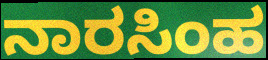
ನಾರಸಿಂಹ